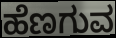
ಹೆಣಗುವ